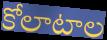
కోలాటాల